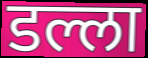
डल्ला